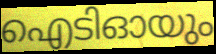
ഐടിഓയും